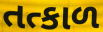
તત્કાળ